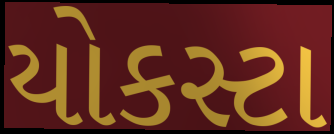
યોકસ્ટા